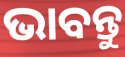
ଭାବନ୍ତୁ